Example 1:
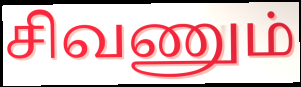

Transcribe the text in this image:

சிவணும்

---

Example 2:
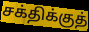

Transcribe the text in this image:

சக்திக்குத்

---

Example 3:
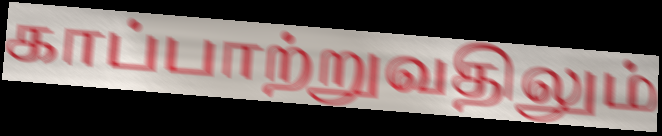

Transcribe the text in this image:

காப்பாற்றுவதிலும்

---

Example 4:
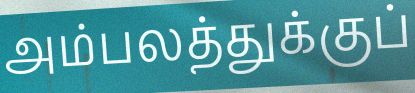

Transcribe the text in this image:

அம்பலத்துக்குப்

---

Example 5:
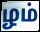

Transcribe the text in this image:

ழம்